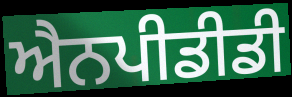
ਐਨਪੀਡੀਡੀ